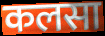
कलसा